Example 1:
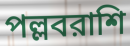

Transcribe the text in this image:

পল্লবরাশি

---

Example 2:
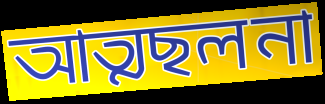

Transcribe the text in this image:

আত্মছলনা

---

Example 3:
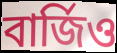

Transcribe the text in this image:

বার্জিও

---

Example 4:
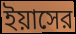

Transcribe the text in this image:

ইয়াসের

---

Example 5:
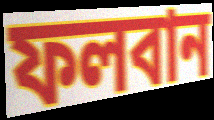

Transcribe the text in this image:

ফলবান